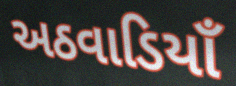
અઠવાડિયાઁ